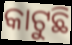
କାଟୁଛି